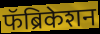
फॅब्रिकेशन